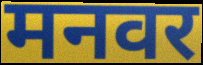
मनवर